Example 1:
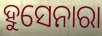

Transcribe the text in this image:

ହୁସେନାରା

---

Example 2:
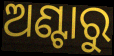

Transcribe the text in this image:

ଅଣ୍ଟାରୁ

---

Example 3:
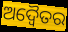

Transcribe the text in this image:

ଅଦ୍ଵୈତର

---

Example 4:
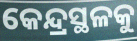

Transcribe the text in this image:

କେନ୍ଦ୍ରସ୍ଥଳକୁ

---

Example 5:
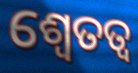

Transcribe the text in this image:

ଶ୍ୱେତତ୍ଵ